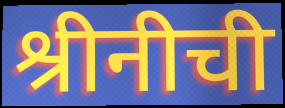
श्रीनीची